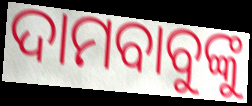
ଦାମବାବୁଙ୍କୁ